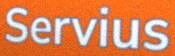
Servius